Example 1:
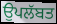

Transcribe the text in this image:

ਉਪਲੱਬਤ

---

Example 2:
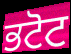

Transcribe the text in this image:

ਭਟੋਟ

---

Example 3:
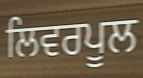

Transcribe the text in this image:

ਲਿਵਰਪੂਲ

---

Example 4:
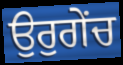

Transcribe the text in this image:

ਉਰੁਗੇਂਚ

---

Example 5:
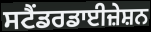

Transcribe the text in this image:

ਸਟੈਂਡਰਡਾਈਜ਼ੇਸ਼ਨ